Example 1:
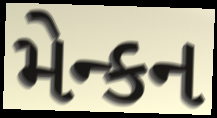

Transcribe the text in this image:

મેન્કન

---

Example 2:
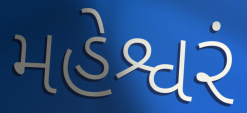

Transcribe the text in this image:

મહેશ્વરં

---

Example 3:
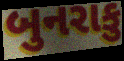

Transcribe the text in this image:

બુનરાકુ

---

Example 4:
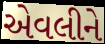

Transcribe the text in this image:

એવલીને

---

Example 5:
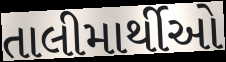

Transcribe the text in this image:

તાલીમાર્થીઓ